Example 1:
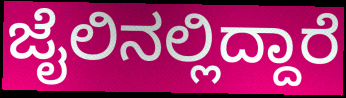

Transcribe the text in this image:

ಜೈಲಿನಲ್ಲಿದ್ದಾರೆ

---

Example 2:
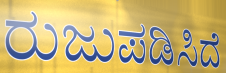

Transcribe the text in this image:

ರುಜುಪಡಿಸಿದೆ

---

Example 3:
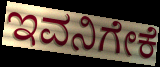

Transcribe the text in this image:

ಇವನಿಗೇಕೆ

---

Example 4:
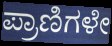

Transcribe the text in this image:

ಪ್ರಾಣಿಗಳೇ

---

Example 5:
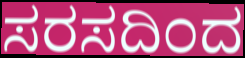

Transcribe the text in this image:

ಸರಸದಿಂದ